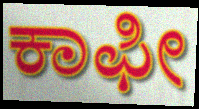
ಕಾಫೀ